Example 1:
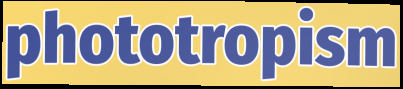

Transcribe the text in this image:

phototropism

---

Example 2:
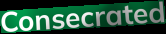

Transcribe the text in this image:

Consecrated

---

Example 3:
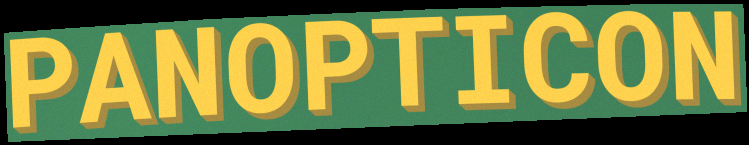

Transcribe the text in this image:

PANOPTICON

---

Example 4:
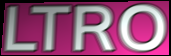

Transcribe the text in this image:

LTRO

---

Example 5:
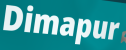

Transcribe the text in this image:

Dimapur